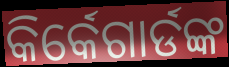
କିର୍କେଗାର୍ଡଙ୍କ